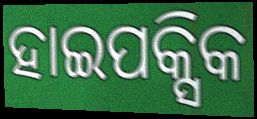
ହାଇପକ୍ସିକ